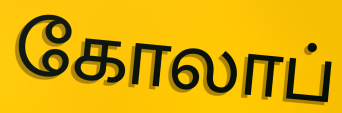
கோலாப்